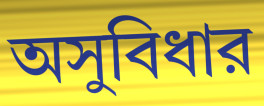
অসুবিধার